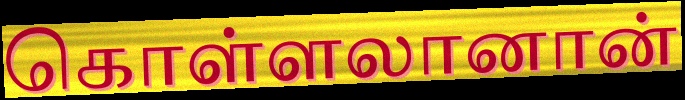
கொள்ளலானான்